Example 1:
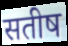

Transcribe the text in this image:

सतीष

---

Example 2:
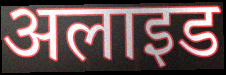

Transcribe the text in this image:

अलाइड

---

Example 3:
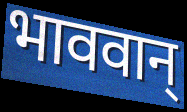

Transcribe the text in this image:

भाववान्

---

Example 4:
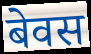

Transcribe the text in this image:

बेवस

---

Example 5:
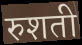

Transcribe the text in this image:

रुशती